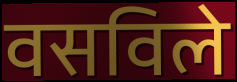
वसविले